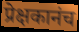
प्रेक्षकानंच